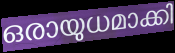
ഒരായുധമാക്കി